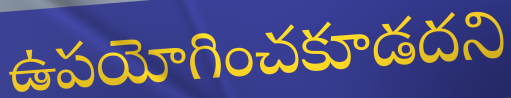
ఉపయోగించకూడదని